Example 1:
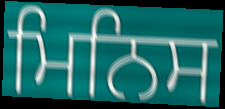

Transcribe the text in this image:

ਮਿਨਿਸ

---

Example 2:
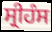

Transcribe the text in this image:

ਸ੍ਰੀਹੰਸ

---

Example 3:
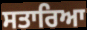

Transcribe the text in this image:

ਸਤਾਰਿਆ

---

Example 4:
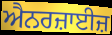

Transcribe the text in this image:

ਐਨਰਜ਼ਾਈਜ਼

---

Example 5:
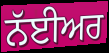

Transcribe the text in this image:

ਨੱਈਅਰ